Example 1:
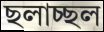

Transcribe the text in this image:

ছলাচ্ছল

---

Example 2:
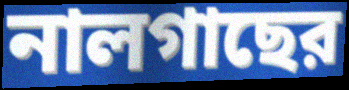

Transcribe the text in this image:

নালগাছের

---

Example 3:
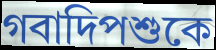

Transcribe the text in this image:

গবাদিপশুকে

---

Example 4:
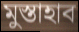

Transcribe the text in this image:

মুস্তাহাব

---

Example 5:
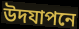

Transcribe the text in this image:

উদযাপনে